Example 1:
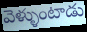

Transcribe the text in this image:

వెళ్ళుంటాడు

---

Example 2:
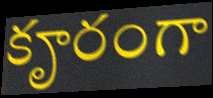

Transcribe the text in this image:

కౄరంగా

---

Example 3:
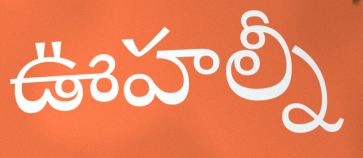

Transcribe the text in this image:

ఊహల్నీ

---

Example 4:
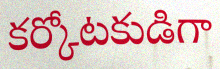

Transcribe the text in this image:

కర్కోటకుడిగా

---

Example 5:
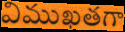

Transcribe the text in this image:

విముఖతగా